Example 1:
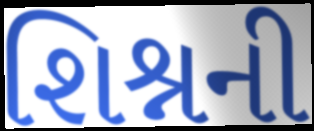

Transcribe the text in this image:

શિશ્નની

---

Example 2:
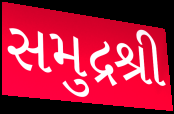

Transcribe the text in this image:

સમુદ્રશ્રી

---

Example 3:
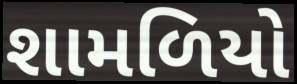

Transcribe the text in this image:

શામળિયો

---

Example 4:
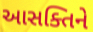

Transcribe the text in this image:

આસક્તિને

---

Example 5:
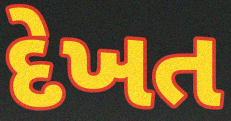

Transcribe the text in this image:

દેખત